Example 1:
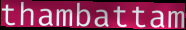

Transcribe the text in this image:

thambattam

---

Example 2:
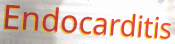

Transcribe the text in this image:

Endocarditis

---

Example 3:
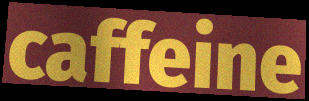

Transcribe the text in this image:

caffeine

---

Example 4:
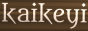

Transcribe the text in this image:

kaikeyi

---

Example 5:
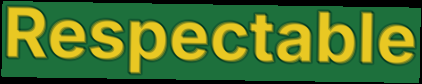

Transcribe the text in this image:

Respectable